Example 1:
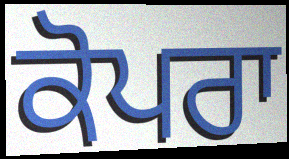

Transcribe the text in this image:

ਕੋਪਰਾ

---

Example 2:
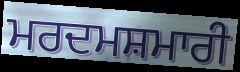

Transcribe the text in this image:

ਮਰਦਮਸ਼ਮਾਰੀ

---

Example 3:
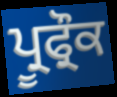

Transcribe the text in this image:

ਪ੍ਰੂਫ੍ਰੌਕ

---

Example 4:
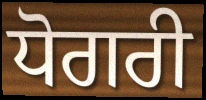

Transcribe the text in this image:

ਧੋਗਰੀ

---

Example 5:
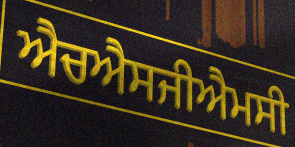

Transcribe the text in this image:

ਐਚਐਸਜੀਐਮਸੀ